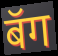
बॅग